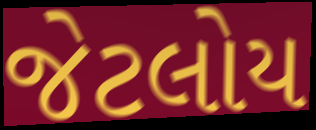
જેટલોય